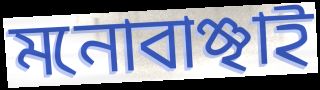
মনোবাঞ্ছাই